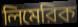
লিমেরিক